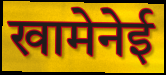
खामेनेई